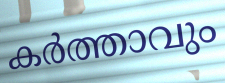
കർത്താവും